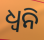
ଧ୍ୱନି